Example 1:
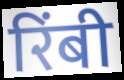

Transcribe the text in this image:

रिंबी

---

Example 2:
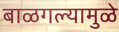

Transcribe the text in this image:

बाळगल्यामुळे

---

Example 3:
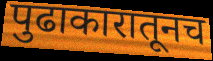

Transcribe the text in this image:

पुढाकारातूनच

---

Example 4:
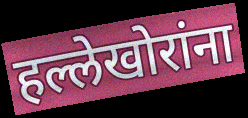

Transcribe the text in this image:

हल्लेखोरांना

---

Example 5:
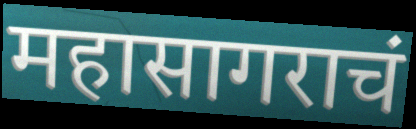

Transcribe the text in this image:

महासागराचं